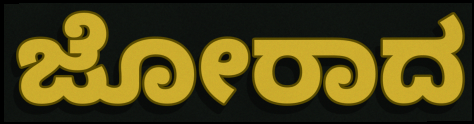
ಜೋರಾದ